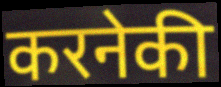
करनेकी